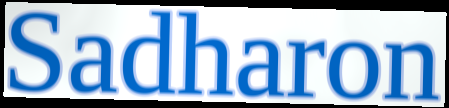
Sadharon